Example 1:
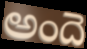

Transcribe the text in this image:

అందె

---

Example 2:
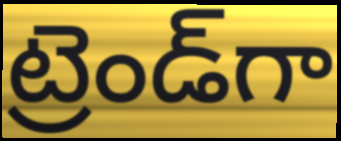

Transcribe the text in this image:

ట్రెండ్‌గా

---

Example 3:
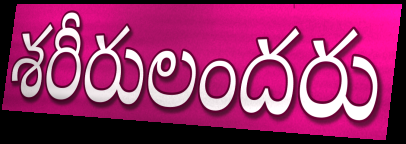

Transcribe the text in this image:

శరీరులందరు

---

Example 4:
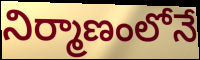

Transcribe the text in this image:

నిర్మాణంలోనే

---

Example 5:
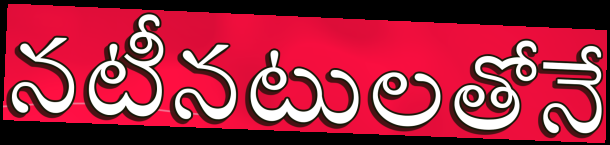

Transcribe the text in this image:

నటీనటులతోనే